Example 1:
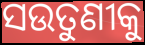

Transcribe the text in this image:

ସଉତୁଣୀକୁ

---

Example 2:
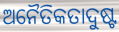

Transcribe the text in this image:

ଅନୈତିକତାଦୁଷ୍ଟ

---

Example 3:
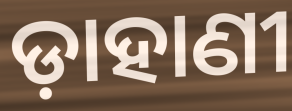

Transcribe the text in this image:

ଡ଼ାହାଣୀ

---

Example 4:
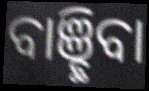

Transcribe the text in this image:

ବାଞ୍ଛିବା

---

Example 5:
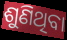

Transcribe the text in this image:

ଶୁଣିଥିବା